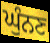
ਘੁੰਨਣ